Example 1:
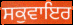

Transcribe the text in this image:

ਸਕੁਵਾਇਰ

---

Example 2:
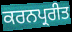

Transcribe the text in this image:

ਕਰਨਪ੍ਰਰੀਤ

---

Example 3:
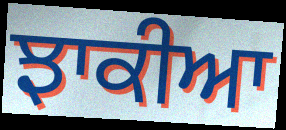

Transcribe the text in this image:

ਝਾਕੀਆ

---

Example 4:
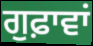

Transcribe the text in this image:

ਗੁਫ਼ਾਵਾਂ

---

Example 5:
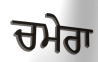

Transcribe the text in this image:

ਚਮੇਰਾ